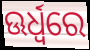
ଊର୍ଧ୍ୱରେ